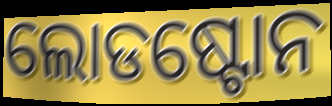
ଲୋଡଷ୍ଟୋନ